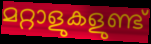
മറ്റാളുകളുണ്ട്